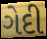
ગેદી